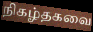
நிகழ்தகவை